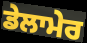
ਡੇਲਾਮੇਰ